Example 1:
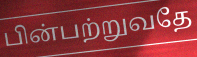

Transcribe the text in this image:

பின்பற்றுவதே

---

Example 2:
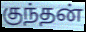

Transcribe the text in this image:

குந்தன்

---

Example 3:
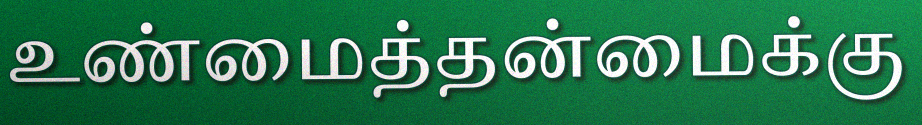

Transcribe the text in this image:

உண்மைத்தன்மைக்கு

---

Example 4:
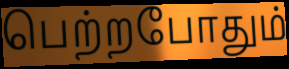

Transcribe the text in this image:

பெற்றபோதும்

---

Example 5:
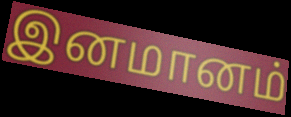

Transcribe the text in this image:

இனமானம்